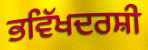
ਭਵਿੱਖਦਰਸ਼ੀ